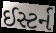
ઈસ્ટર્ન